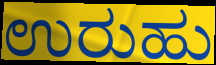
ಉರುಹು